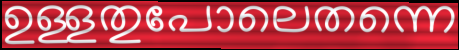
ഉള്ളതുപോലെതന്നെ